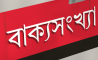
বাক্যসংখ্যা